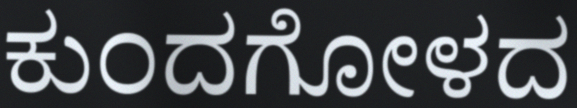
ಕುಂದಗೋಳದ